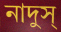
নাদুস্